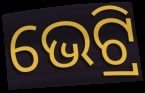
ଭେଟ୍ରି